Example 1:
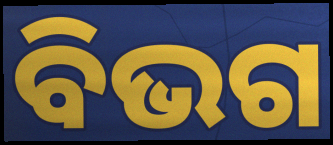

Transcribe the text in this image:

ବିଭଗ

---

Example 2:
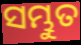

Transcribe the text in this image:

ସମ୍ଭୁତ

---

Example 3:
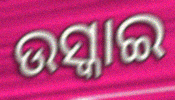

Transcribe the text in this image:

ଉସ୍କାଇ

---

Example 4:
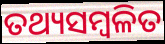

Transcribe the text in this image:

ତଥ୍ୟସମ୍ୱଳିତ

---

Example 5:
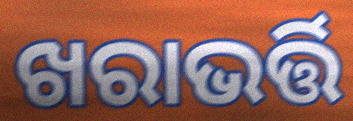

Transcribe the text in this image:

ଖରାଭର୍ତ୍ତି